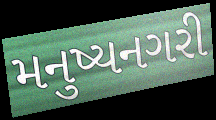
મનુષ્યનગરી